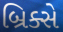
બ્રિક્સે